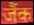
जैंक